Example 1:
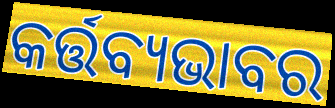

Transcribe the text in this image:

କର୍ତ୍ତବ୍ୟଭାବର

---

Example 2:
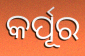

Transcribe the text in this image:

କର୍ପୂର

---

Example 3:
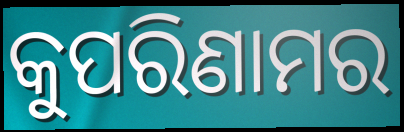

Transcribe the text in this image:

କୁପରିଣାମର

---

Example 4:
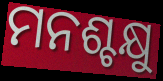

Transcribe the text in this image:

ମନଶ୍ଚକ୍ଷୁ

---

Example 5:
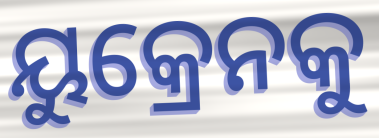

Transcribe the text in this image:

ୟୁକ୍ରେନକୁ